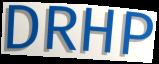
DRHP